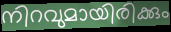
നിറവുമായിരിക്കും